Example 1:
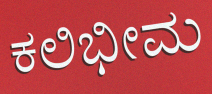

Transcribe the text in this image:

ಕಲಿಭೀಮ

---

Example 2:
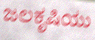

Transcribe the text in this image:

ಜಲಕೃಷಿಯು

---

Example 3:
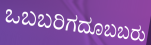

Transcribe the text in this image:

ಒಬಬರಿಗದೂಬಬರು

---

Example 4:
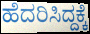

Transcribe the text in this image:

ಹೆದರಿಸಿದ್ದಕ್ಕೆ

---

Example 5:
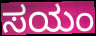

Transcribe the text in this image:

ಸಯಂ